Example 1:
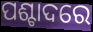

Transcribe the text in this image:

ପଶ୍ଚାଦରେ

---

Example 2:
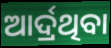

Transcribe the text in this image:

ଆର୍ଦ୍ରଥିବା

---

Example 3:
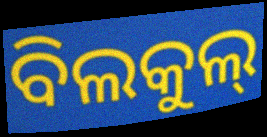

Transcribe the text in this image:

ବିଲକୁଲ୍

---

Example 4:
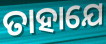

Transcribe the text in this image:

ତାହାଯେ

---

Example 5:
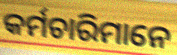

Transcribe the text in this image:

କର୍ମଚାରିମାନେ